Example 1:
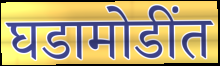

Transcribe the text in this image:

घडामोडींत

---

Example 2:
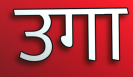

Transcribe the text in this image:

उगा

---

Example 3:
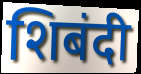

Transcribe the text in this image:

शिबंदी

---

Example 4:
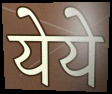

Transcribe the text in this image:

येये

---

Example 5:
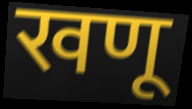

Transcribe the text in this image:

खणू